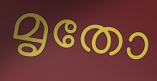
മൃതോ